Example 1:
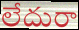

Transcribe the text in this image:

లేదురా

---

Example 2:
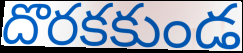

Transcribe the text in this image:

దొరకకుండ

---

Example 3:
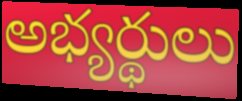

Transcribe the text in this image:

అభ్యర్థులు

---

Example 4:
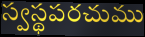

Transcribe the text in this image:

స్వస్థపరచుము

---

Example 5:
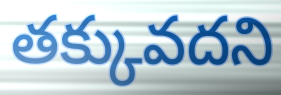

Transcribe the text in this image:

తక్కువదని